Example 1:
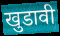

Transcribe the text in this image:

खुडावी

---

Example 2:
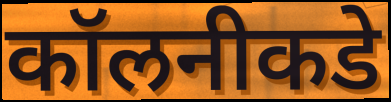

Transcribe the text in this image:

कॉलनीकडे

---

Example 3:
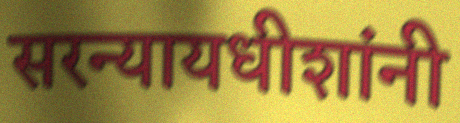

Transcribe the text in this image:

सरन्यायधीशांनी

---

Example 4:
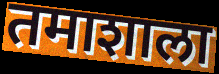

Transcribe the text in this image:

तमाशाला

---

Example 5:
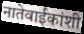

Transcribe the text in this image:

नातेवाईकांशी